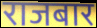
राजबार